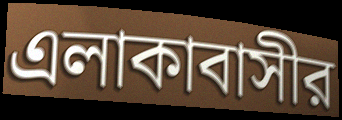
এলাকাবাসীর